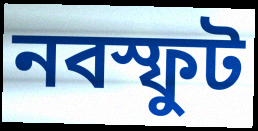
নবস্ফুট